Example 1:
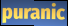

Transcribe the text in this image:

puranic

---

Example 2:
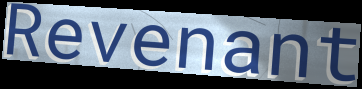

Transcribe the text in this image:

Revenant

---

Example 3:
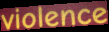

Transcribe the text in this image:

violence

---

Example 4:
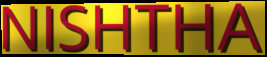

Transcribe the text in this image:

NISHTHA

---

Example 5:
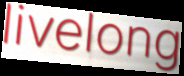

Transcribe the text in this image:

livelong